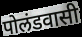
पोलंडवासी